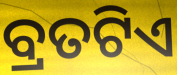
ବ୍ରତଟିଏ